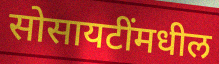
सोसायटींमधील